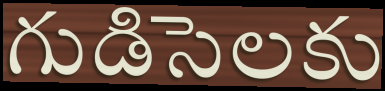
గుడిసెలకు